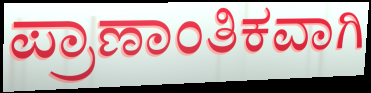
ಪ್ರಾಣಾಂತಿಕವಾಗಿ